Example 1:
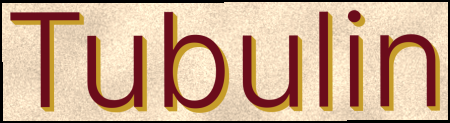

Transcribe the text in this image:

Tubulin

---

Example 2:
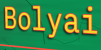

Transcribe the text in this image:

Bolyai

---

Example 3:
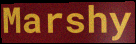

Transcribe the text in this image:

Marshy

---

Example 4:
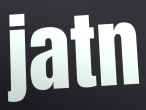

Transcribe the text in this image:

jatn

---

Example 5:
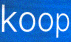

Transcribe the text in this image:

koop